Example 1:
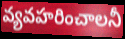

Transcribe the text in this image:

వ్యవహరించాలనీ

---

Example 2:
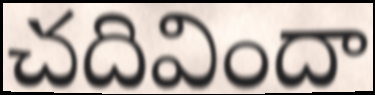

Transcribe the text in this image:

చదివిందా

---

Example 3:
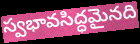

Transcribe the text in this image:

స్వభావసిద్ధమైనది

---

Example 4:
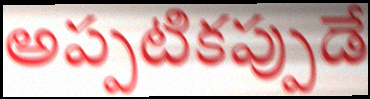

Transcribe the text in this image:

అప్పటికప్పుడే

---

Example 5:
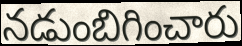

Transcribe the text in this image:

నడుంబిగించారు